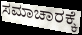
ಸಮಾಚಾರಕ್ಕೆ